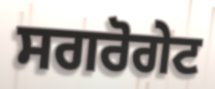
ਸਗਰੋਗੇਟ